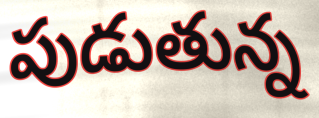
పుడుతున్న